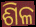
ଶିଳ